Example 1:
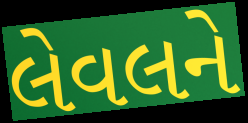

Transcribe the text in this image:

લેવલને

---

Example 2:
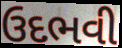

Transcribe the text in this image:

ઉદભવી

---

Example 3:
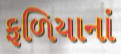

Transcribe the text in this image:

ફળિયાનાં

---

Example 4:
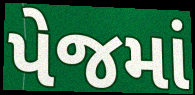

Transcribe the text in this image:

પેજમાં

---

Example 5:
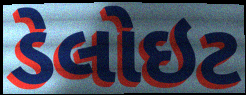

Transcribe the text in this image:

ડેલોઇટ